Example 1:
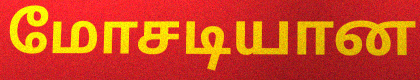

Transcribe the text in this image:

மோசடியான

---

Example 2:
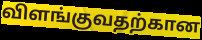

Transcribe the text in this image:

விளங்குவதற்கான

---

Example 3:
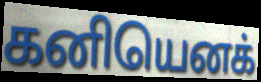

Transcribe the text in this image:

கனியெனக்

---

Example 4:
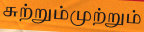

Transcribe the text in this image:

சுற்றும்முற்றும்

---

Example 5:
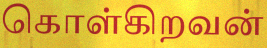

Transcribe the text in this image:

கொள்கிறவன்